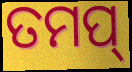
ତମପ୍